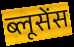
ब्लूसेंस